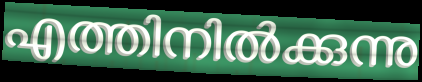
എത്തിനിൽക്കുന്നു